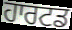
ਹਾਰਟਡ